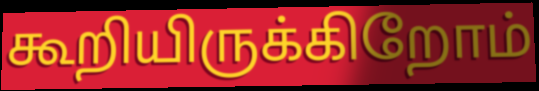
கூறியிருக்கிறோம்